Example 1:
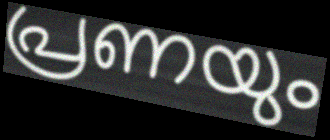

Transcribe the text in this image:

പ്രണയും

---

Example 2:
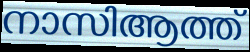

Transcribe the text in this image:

നാസിആത്ത്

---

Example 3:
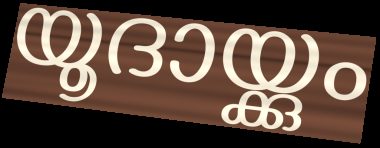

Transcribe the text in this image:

യൂദായ്ക്കും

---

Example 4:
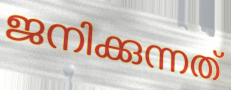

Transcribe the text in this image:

ജനിക്കുന്നത്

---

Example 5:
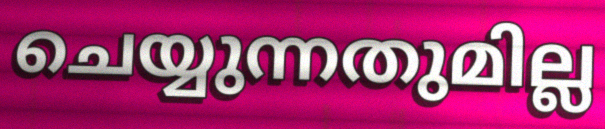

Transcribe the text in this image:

ചെയ്യുന്നതുമില്ല